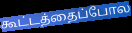
கூட்டத்தைப்போல